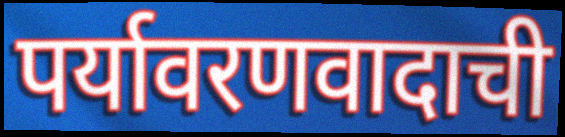
पर्यावरणवादाची